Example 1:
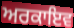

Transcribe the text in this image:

ਅਰਕਾਇਵ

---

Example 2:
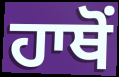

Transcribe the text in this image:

ਹਾਥੋਂ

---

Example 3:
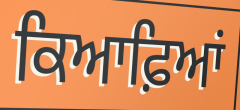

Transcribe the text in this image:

ਕਿਆਫ਼ਿਆਂ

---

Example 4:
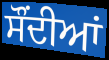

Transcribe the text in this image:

ਸੌਂਦੀਆਂ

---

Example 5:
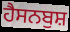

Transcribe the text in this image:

ਹੈਸਨਬੁਸ਼